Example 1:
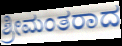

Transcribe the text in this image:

ಶ್ರೀಮಂತರಾದ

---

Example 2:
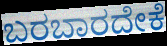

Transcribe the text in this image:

ಬರಬಾರದೇಕೆ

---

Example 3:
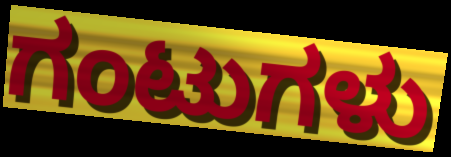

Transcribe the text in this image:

ಗಂಟುಗಳು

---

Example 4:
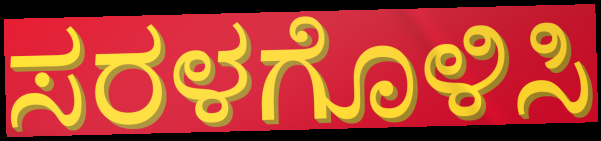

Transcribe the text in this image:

ಸರಳಗೊಳಿಸಿ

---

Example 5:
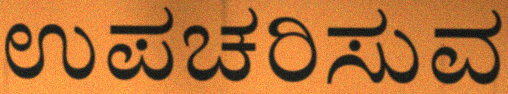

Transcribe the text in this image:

ಉಪಚರಿಸುವ